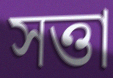
সত্তা